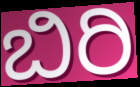
ಬಿರಿ